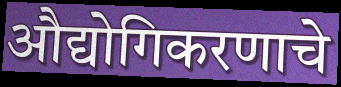
औद्योगिकरणाचे